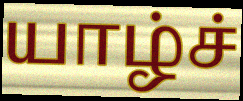
யாழ்ச்